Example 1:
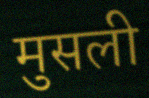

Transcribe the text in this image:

मुसली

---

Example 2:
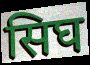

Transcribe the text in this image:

सिघ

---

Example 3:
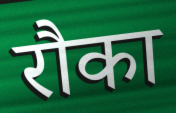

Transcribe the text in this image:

रौका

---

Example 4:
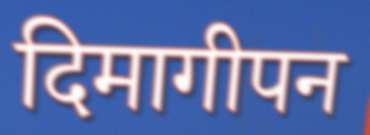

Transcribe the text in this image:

दिमागीपन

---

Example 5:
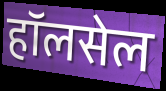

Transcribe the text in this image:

हॉलसेल